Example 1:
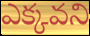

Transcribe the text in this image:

ఎక్కవని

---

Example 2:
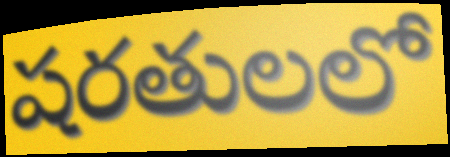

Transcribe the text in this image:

షరతులలో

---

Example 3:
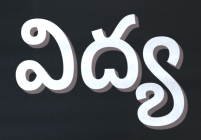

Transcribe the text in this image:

విద్య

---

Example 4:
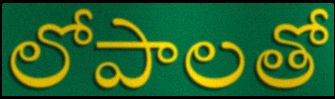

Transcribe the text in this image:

లోపాలతో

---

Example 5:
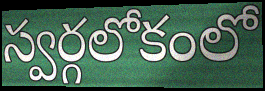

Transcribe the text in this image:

స్వర్గలోకంలో